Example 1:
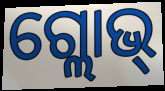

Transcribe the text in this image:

ଗ୍ଲୋଭ୍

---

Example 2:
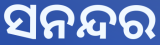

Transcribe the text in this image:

ସନନ୍ଦର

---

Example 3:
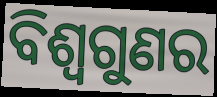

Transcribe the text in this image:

ବିଶ୍ୱଗୁଣର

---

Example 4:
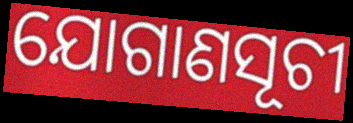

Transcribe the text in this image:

ଯୋଗାଣସୂଚୀ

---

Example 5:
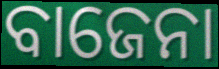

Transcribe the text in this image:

ବାଜେନା